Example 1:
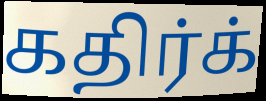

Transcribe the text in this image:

கதிர்க்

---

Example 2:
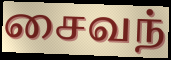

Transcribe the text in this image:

சைவந்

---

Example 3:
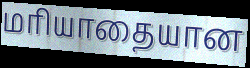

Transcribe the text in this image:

மரியாதையான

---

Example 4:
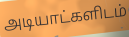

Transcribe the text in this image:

அடியாட்களிடம்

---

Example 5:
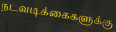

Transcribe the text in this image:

நடவடிக்கைகளுக்கு